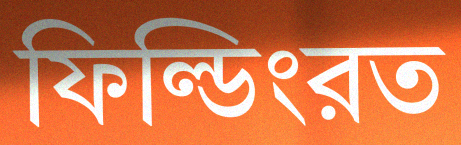
ফিল্ডিংরত